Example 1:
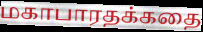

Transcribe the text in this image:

மகாபாரதக்கதை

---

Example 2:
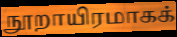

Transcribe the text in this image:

நூறாயிரமாகக்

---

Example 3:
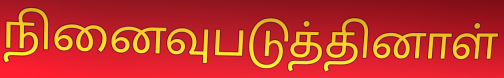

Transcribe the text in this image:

நினைவுபடுத்தினாள்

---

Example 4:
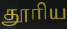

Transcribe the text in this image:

தூரிய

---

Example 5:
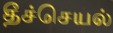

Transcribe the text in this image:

தீச்செயல்